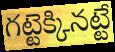
గట్టెక్కినట్టే